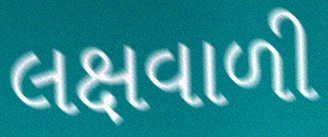
લક્ષવાળી